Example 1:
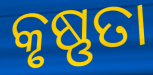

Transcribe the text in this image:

କୃଷ୍ଣତା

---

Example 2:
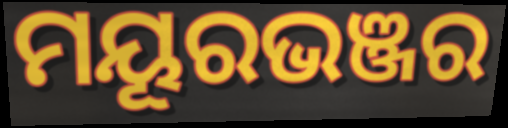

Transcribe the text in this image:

ମୟୂରଭଞ୍ଜର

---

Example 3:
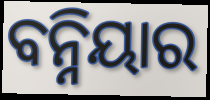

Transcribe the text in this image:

ବନ୍ନିୟାର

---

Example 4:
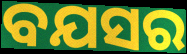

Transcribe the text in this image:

ବଯସର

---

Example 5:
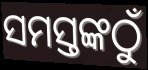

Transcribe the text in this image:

ସମସ୍ତଙ୍କଠୁଁ